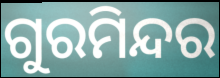
ଗୁରମିନ୍ଦର